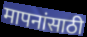
मापनांसाठी